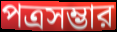
পত্রসম্ভার